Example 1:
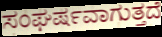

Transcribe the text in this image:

ಸಂಘರ್ಷವಾಗುತ್ತದೆ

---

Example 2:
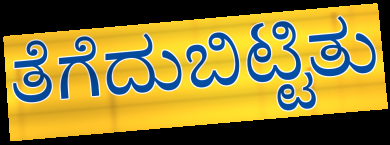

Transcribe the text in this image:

ತೆಗೆದುಬಿಟ್ಟಿತು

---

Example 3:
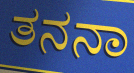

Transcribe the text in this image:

ತನನಾ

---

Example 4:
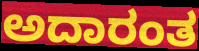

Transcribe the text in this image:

ಅದಾರಂತ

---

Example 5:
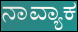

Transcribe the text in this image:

ನಾವ್ಯಾಕ